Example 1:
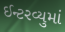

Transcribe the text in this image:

ઈન્ટરવ્યુમાં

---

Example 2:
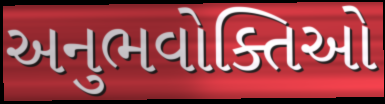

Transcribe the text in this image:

અનુભવોક્તિઓ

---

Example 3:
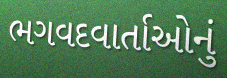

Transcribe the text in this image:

ભગવદવાર્તાઓનું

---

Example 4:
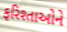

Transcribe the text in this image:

ફરિશ્તાઓને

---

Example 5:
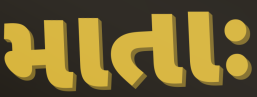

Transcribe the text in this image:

માતાઃ